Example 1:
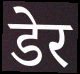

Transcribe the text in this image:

डेर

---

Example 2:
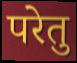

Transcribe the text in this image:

परेतु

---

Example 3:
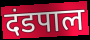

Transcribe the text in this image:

दंडपाल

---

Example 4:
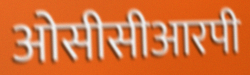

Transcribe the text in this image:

ओसीसीआरपी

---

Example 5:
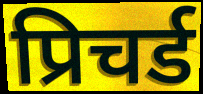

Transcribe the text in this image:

प्रिचर्ड